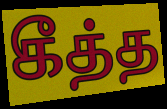
கீத்த